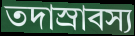
তদাস্রাবস্য